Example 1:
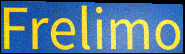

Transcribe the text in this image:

Frelimo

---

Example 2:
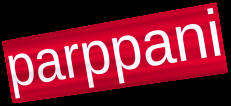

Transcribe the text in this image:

parppani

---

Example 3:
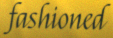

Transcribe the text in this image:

fashioned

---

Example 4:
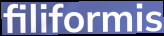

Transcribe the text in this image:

filiformis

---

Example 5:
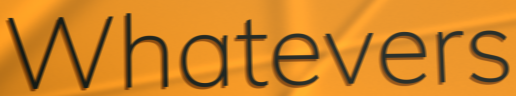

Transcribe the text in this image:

Whatevers